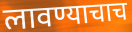
लावण्याचाच